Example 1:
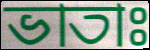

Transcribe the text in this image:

ভাতাঃ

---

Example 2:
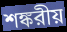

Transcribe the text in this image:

শঙ্করীয়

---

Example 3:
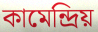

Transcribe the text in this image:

কামেন্দ্রিয়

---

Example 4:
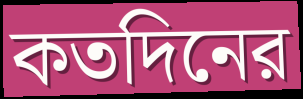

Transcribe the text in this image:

কতদিনের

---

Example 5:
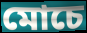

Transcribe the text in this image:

মোচে